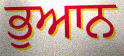
ਭੁਆਨ